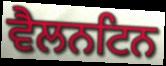
ਵੈਲਨਟਿਨ